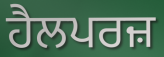
ਹੈਲਪਰਜ਼